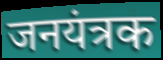
जनयंत्रक